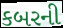
કબરની